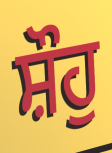
ਸ਼ੌਹੁ